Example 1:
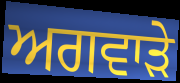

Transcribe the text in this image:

ਅਗਵਾੜੇ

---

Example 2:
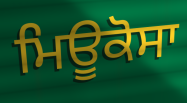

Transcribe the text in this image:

ਮਿਊਕੋਸਾ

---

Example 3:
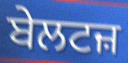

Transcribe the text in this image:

ਬੇਲਟਜ਼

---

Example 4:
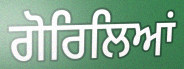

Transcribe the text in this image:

ਗੋਰਿਲਿਆਂ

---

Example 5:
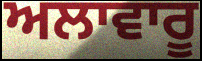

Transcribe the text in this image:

ਅਲਾਵਾਰੂ